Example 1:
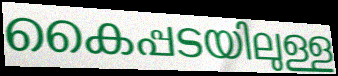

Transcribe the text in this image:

കൈപ്പടയിലുള്ള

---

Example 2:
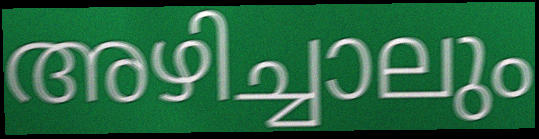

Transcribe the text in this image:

അഴിച്ചാലും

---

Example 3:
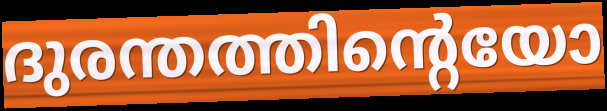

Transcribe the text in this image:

ദുരന്തത്തിന്റെയോ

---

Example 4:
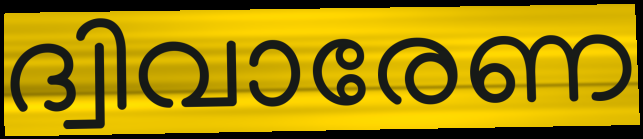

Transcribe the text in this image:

ദ്വിവാരേണ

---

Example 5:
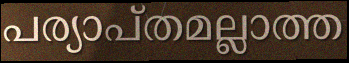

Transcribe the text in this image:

പര്യാപ്തമല്ലാത്ത